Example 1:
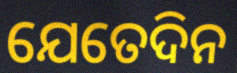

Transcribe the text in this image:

ଯେତେଦିନ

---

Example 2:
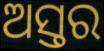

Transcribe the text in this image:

ଅସ୍ତର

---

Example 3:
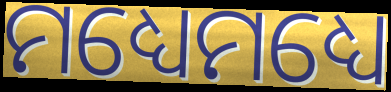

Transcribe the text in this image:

ମଧ୍ୟେମଧ୍ୟେ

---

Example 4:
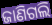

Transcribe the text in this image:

ଜାଣିଗଲି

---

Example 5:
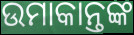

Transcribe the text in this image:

ଉମାକାନ୍ତଙ୍କ